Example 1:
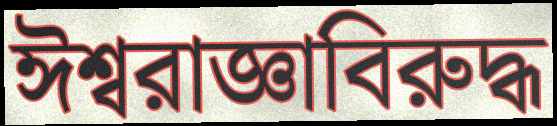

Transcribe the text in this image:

ঈশ্বরাজ্ঞাবিরুদ্ধ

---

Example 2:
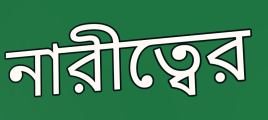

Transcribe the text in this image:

নারীত্বের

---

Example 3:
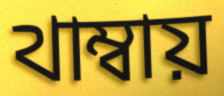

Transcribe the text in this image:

থাম্বায়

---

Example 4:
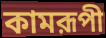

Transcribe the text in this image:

কামরূপী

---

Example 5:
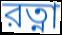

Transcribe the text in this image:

রত্না